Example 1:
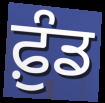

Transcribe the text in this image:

ਫ਼ੁੰਡ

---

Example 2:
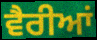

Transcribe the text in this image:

ਵੈਰੀਆਂ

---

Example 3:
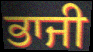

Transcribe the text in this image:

ਭਾਜੀ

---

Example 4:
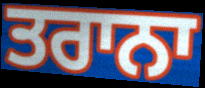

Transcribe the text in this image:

ਤਰਾਨਾ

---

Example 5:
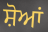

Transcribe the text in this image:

ਸ਼ੋਆਂ